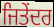
ਜਿਤੇਂਦਰ